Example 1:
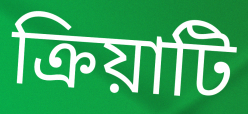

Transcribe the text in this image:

ক্রিয়াটি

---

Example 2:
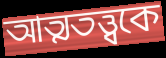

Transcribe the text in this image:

আত্মতত্ত্বকে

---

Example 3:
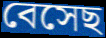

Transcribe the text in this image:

বেসেছ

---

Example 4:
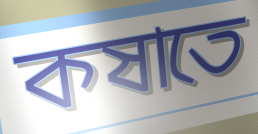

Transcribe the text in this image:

কষাতে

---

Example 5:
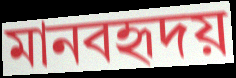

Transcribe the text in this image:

মানবহৃদয়